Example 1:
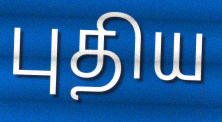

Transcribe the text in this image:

புதிய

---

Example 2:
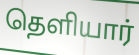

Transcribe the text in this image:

தெளியார்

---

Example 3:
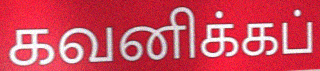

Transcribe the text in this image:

கவனிக்கப்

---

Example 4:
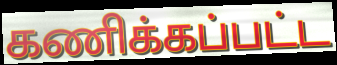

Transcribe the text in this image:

கணிக்கப்பட்ட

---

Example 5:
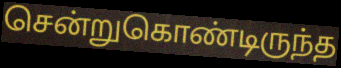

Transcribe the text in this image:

சென்றுகொண்டிருந்த